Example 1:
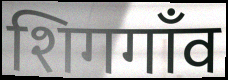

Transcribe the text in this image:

शिगगाँव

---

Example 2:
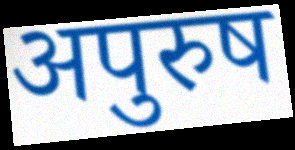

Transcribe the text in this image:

अपुरुष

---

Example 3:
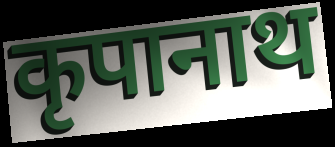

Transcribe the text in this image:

कृपानाथ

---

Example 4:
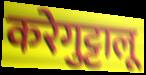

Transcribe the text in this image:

करेगुट्टालू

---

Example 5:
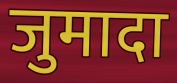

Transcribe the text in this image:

जुमादा